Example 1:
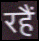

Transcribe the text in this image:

रहैं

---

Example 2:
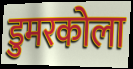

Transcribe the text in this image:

डुमरकोला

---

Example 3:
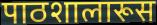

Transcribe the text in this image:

पाठशालारूस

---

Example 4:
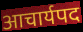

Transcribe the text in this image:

आचार्यपद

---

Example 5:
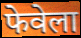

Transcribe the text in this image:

फेवेला